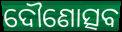
ଦୌଣୋତ୍ସବ